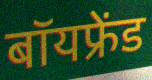
बॉयफ्रेंड